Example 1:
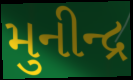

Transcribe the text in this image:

મુનીન્દ્ર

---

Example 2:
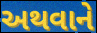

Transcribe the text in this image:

અથવાને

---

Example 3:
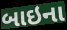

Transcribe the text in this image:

બાઇના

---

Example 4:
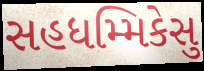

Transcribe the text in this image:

સહધમ્મિકેસુ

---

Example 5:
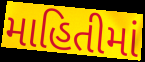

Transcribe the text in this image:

માહિતીમાં